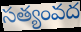
సత్యంవద